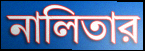
নালিতার